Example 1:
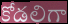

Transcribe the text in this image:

కోడలిగా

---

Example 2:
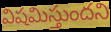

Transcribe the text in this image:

విషమిస్తుందని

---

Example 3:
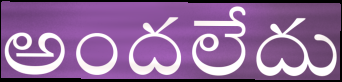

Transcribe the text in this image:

అందలేదు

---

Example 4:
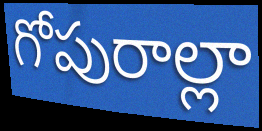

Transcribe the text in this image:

గోపురాల్లా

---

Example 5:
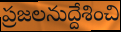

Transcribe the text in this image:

ప్రజలనుద్దేశించి